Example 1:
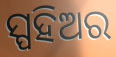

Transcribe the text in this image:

ସ୍ପହିଅର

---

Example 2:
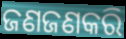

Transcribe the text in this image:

ଜଣଜଣକରି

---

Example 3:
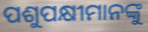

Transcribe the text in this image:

ପଶୁପକ୍ଷୀମାନଙ୍କୁ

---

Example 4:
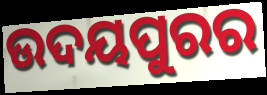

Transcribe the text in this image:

ଉଦୟପୁରର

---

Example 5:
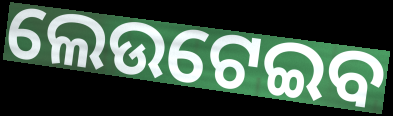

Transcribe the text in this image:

ଲେଉଟେଇବ